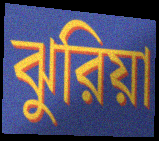
ঝুরিয়া